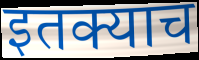
इतक्याच